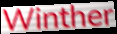
Winther